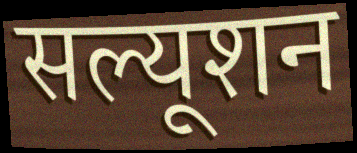
सल्यूशन